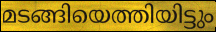
മടങ്ങിയെത്തിയിട്ടും